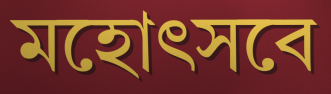
মহোৎসবে